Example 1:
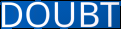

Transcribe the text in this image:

DOUBT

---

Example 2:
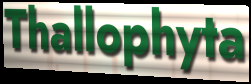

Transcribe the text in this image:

Thallophyta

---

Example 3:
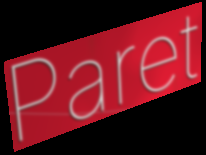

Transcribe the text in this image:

Paret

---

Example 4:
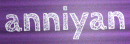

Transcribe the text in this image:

anniyan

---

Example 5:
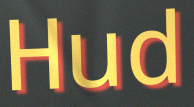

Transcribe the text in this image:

Hud